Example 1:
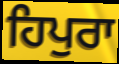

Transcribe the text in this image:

ਹਿਪੁਰਾ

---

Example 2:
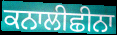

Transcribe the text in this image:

ਕਨਾਲੀਛੀਨਾ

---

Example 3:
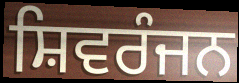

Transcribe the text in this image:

ਸ਼ਿਵਰੰਜਨ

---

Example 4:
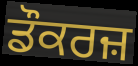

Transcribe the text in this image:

ਡੌਕਰਜ਼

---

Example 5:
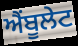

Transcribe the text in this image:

ਐਂਬੂਲੇਟ